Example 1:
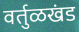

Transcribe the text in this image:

वर्तुळखंड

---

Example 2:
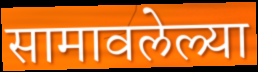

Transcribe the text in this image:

सामावलेल्या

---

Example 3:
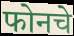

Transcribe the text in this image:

फोनचे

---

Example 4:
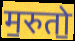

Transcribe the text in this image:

म॒रुतो॒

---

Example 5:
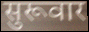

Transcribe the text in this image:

सुरूवार